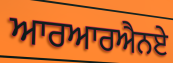
ਆਰਆਰਐਨਏ